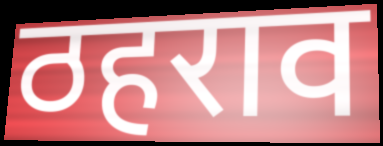
ठहराव